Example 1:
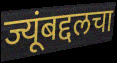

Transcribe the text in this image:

ज्यूंबद्दलचा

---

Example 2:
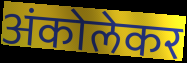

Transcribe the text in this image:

अंकोलेकर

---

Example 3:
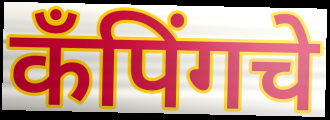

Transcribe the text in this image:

कँपिंगचे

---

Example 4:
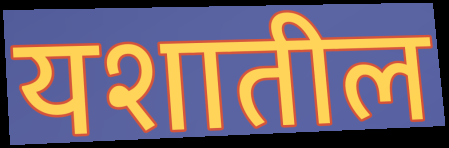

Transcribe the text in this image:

यशातील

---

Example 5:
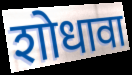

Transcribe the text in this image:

शोधावा